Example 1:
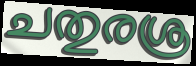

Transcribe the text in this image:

ചതുരശ്ര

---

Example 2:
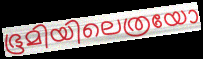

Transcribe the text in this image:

ഭൂമിയിലെത്രയോ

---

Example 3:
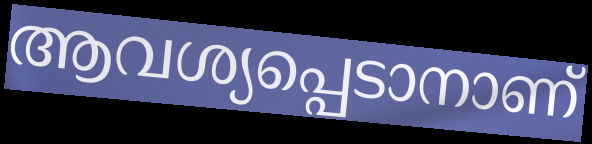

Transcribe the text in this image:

ആവശ്യപ്പെടാനാണ്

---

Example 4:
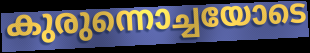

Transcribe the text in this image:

കുരുന്നൊച്ചയോടെ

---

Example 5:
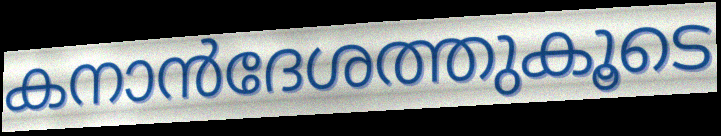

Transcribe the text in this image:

കനാൻദേശത്തുകൂടെ